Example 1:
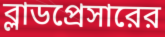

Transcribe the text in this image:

ব্লাডপ্রেসারের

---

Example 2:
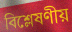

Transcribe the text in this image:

বিশ্লেষণীয়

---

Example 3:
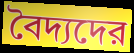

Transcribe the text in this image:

বৈদ্যদের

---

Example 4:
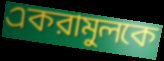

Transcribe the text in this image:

একরামুলকে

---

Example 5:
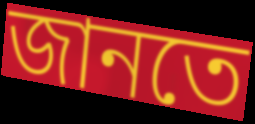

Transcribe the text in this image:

জানতে